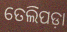
ତେଲିପଡ଼ା